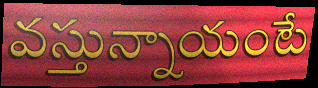
వస్తున్నాయంటే